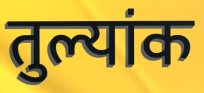
तुल्यांक